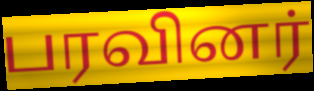
பரவினர்